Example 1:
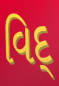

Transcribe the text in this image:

વિદ્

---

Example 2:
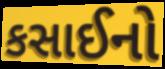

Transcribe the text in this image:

કસાઈનો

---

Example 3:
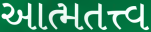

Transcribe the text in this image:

આત્મતત્ત્વ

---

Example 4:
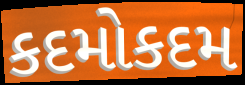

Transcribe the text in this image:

કદમોકદમ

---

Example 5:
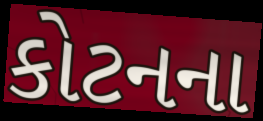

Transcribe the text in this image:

કોટનના